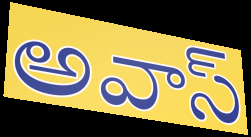
అవాస్